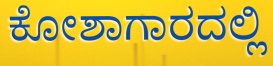
ಕೋಶಾಗಾರದಲ್ಲಿ